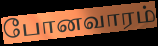
போனவாரம்